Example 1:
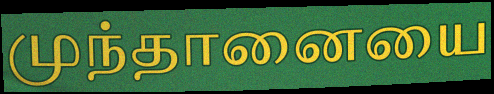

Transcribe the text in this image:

முந்தானையை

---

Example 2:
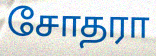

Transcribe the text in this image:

சோதரா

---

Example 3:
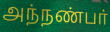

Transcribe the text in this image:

அந்நண்பர்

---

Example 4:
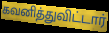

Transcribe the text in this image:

கவனித்துவிட்டார்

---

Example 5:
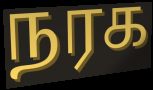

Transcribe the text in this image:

நரக